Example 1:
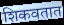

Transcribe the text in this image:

शिकवतात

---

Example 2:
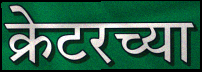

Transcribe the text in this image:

क्रेटरच्या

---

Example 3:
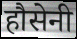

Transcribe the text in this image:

हौसेनी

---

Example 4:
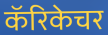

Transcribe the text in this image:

कॅरिकेचर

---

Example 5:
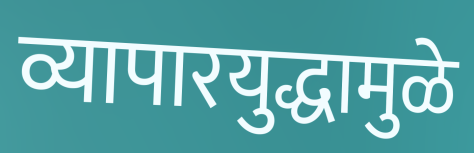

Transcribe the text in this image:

व्यापारयुद्धामुळे